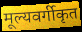
मूल्यवर्गीकृत